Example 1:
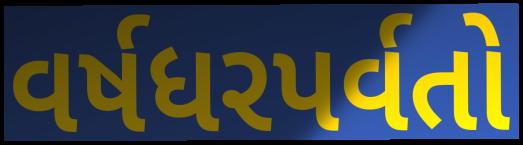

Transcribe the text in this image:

વર્ષધરપર્વતો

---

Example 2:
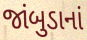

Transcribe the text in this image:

જાંબુડાનાં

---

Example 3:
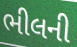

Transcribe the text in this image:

ભીલની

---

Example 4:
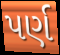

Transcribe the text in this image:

પર્ણ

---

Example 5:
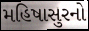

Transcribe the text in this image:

મહિષાસુરનો